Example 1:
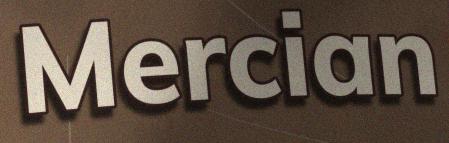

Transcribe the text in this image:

Mercian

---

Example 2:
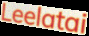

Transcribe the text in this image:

Leelatai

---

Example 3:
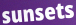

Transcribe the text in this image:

sunsets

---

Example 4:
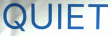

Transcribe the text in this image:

QUIET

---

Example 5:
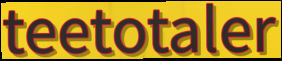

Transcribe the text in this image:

teetotaler